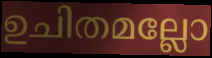
ഉചിതമല്ലോ